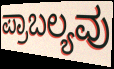
ಪ್ರಾಬಲ್ಯವು